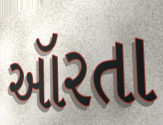
ઑરતા